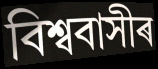
বিশ্ববাসীৰ